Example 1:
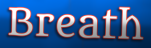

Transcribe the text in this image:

Breath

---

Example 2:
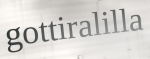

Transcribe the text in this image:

gottiralilla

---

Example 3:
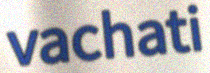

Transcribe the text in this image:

vachati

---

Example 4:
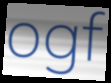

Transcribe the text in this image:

ogf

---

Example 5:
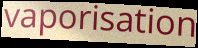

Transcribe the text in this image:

vaporisation